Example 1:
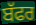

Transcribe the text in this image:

ਬੱਫਰ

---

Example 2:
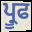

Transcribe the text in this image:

ਪ੍ਰੂਫ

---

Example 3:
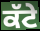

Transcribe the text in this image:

ਕੱਟੇ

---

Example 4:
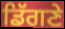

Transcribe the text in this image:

ਡਿੱਗਣੇ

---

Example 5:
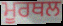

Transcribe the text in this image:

ਮੂਰਥਲ